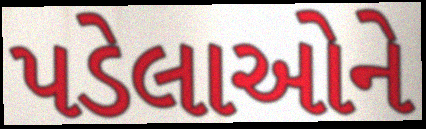
પડેલાઓને